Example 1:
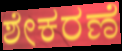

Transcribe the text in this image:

ಶೇಕರಣೆ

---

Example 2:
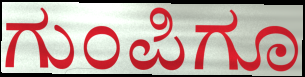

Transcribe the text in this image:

ಗುಂಪಿಗೂ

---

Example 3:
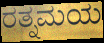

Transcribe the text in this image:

ರತ್ನಮಯ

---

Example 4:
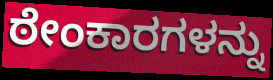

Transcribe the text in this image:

ಠೇಂಕಾರಗಳನ್ನು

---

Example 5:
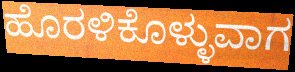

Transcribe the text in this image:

ಹೊರಳಿಕೊಳ್ಳುವಾಗ